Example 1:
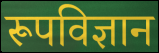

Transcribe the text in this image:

रूपविज्ञान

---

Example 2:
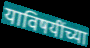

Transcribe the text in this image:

याविषयींच्या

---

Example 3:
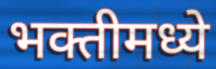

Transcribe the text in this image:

भक्तीमध्ये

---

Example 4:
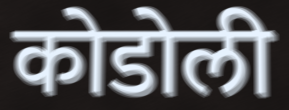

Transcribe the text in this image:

कोडोली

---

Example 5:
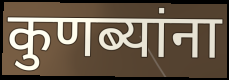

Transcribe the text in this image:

कुणब्यांना